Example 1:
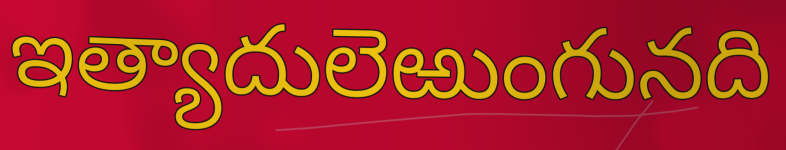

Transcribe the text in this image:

ఇత్యాదులెఱుంగునది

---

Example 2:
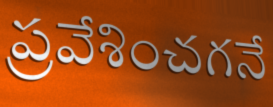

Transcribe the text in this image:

ప్రవేశించగనే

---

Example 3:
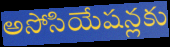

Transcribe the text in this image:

అసోసియేషన్లకు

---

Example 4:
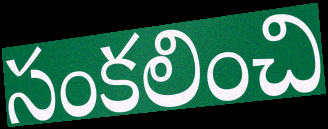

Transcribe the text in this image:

సంకలించి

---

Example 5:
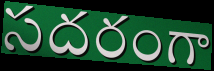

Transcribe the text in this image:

సదరంగా